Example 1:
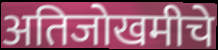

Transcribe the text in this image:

अतिजोखमीचे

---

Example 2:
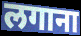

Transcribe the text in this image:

लगाना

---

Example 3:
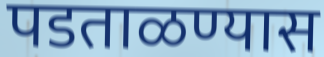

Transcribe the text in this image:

पडताळण्यास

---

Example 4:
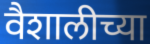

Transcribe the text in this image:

वैशालीच्या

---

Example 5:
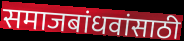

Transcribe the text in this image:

समाजबांधवांसाठी